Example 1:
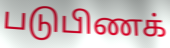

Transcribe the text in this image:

படுபிணக்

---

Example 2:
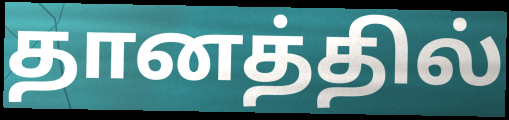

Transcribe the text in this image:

தானத்தில்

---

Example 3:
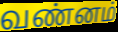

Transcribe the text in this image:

வண்னம்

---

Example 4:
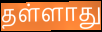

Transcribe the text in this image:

தள்ளாது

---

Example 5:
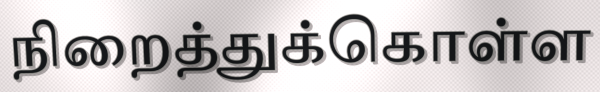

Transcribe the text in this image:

நிறைத்துக்கொள்ள